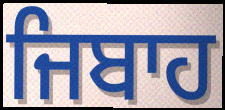
ਜਿਬਾਹ